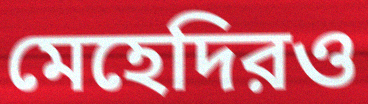
মেহেদিরও